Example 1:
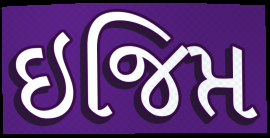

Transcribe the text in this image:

ઇજિપ્ત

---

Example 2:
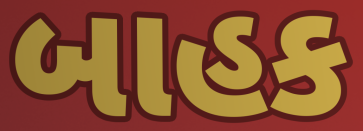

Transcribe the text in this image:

બાહક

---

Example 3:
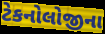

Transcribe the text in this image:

ટેકનોલોજીના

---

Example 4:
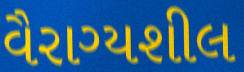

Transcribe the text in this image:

વૈરાગ્યશીલ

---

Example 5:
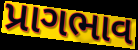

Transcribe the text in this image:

પ્રાગભાવ